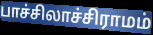
பாச்சிலாச்சிராமம்